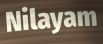
Nilayam